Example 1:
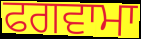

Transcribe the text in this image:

ਫਗਵਾਮਾ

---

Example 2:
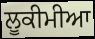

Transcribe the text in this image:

ਲੂਕੀਮੀਆ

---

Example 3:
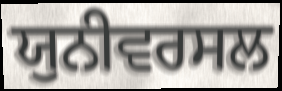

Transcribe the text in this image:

ਯੁਨੀਵਰਸਲ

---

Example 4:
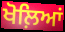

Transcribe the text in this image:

ਖੋਲ਼ਿਆਂ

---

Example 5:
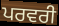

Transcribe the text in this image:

ਪਰਵਰੀ